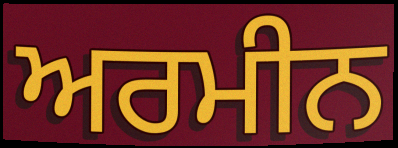
ਅਰਮੀਨ